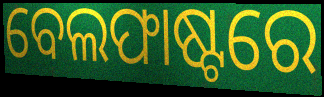
ବେଲଫାଷ୍ଟରେ